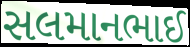
સલમાનભાઈ